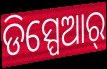
ଡିସ୍ପେଆର୍